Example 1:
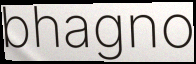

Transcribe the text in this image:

bhagno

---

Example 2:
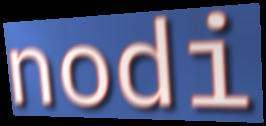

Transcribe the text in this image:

nodi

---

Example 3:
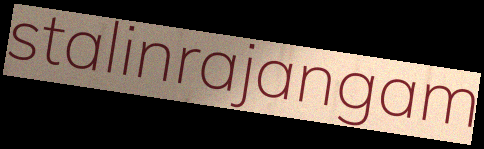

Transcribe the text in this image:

stalinrajangam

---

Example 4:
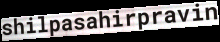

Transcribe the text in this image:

shilpasahirpravin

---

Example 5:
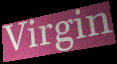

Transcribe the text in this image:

Virgin